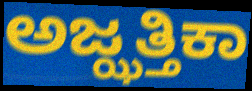
ಅಜ್ಝತ್ತಿಕಾ